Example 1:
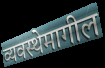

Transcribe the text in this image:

व्यवस्थेमागील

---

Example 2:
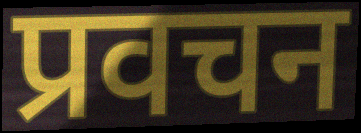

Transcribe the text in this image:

प्रवचन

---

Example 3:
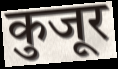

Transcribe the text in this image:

कुजूर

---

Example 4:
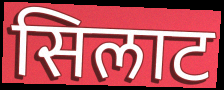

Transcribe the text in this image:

सिलाट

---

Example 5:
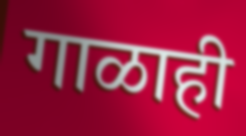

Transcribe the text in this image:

गाळाही